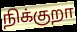
நிக்குறா